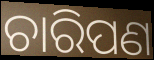
ଚାରିପଣ